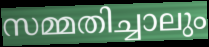
സമ്മതിച്ചാലും